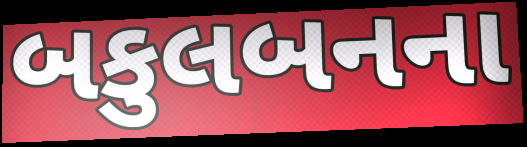
બકુલબનના